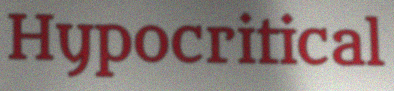
Hypocritical